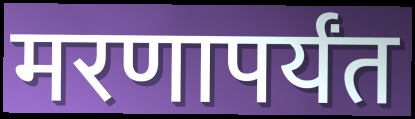
मरणापर्यंत